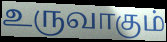
உருவாகும்